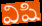
విషి